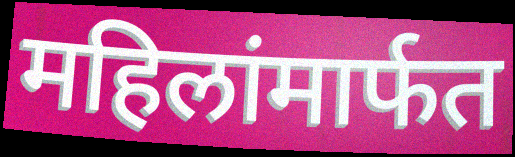
महिलांमार्फत